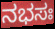
ನಭಸಃ